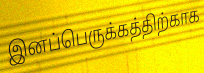
இனப்பெருக்கத்திற்காக